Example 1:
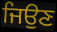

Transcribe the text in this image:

ਜਿਉਣ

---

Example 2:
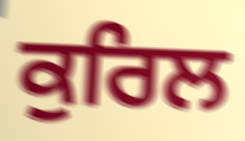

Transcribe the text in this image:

ਕੁਰਿਲ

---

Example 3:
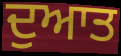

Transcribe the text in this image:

ਦੁਆਤ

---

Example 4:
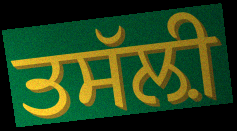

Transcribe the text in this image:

ਤਸੱਲ਼ੀ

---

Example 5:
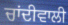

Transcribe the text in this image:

ਚਾਂਦੀਵਾਲੀ